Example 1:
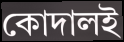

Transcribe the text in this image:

কোদালই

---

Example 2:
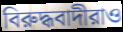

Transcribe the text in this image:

বিরুদ্ধবাদীরাও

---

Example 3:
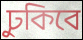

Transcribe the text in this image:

ঢুকিবে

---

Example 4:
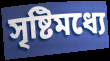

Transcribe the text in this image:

সৃষ্টিমধ্যে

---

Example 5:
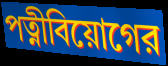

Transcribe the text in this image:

পত্নীবিয়োগের